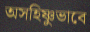
অসহিষ্ণুভাবে